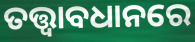
ତତ୍ତ୍ୱାବଧାନରେ